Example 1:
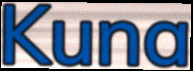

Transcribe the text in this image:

Kuna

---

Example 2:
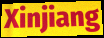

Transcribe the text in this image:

Xinjiang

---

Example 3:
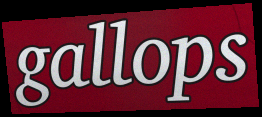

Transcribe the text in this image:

gallops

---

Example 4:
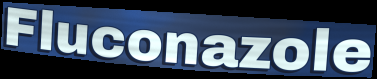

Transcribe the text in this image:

Fluconazole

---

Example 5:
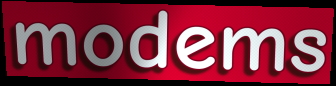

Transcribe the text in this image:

modems